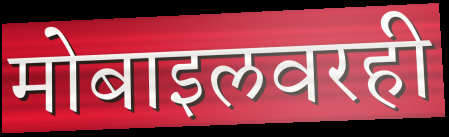
मोबाइलवरही